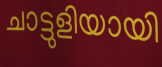
ചാട്ടുളിയായി